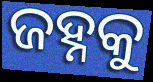
ଜହ୍ନକୁ